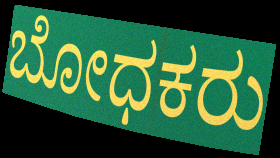
ಬೋಧಕರು